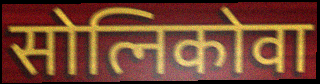
सोत्निकोवा